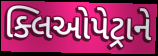
ક્લિઓપેટ્રાને